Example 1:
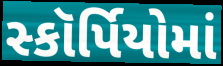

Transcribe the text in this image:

સ્કૉર્પિયોમાં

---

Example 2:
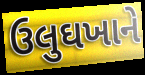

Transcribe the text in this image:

ઉલુઘખાને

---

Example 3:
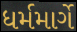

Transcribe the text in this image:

ધર્મમાર્ગે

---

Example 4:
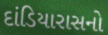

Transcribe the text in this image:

દાંડિયારાસનો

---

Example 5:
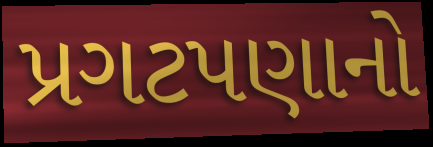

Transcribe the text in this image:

પ્રગટપણાનો